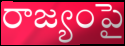
రాజ్యంపై